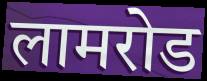
लामरोड